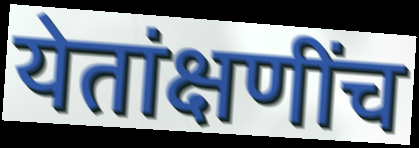
येतांक्षणींच